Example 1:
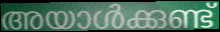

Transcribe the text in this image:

അയാൾക്കുണ്ട്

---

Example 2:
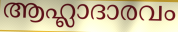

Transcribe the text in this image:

ആഹ്ലാദാരവം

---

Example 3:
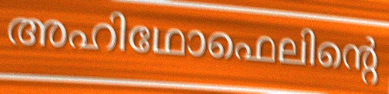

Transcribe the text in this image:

അഹിഥോഫെലിന്റെ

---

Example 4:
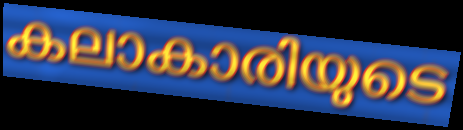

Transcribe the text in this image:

കലാകാരിയുടെ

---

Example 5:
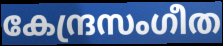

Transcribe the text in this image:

കേന്ദ്രസംഗീത